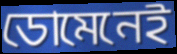
ডোমেনেই